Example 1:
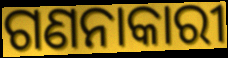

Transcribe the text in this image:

ଗଣନାକାରୀ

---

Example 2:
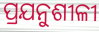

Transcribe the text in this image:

ପ୍ରଯନୁଶୀଳୀ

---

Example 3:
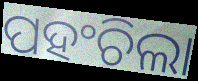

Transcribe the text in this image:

ପହଂଚିଲା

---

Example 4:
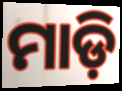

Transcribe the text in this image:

ମାଡ଼ି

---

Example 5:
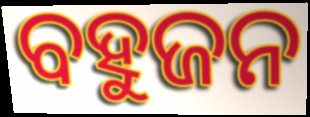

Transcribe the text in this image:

ବହୁଜନ